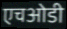
एचओडी